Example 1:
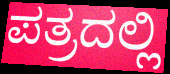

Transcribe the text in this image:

ಪತ್ರದಲ್ಲಿ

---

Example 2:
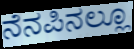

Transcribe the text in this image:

ನೆನಪಿನಲ್ಲೂ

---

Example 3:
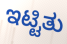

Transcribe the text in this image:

ಇಟ್ಟಿತು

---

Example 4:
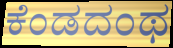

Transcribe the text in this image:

ಕೆಂಡದಂಥ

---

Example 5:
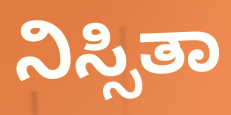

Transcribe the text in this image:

ನಿಸ್ಸಿತಾ